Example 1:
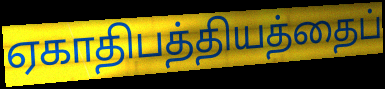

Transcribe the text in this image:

ஏகாதிபத்தியத்தைப்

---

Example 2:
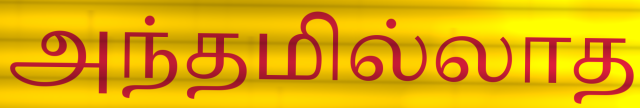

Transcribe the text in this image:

அந்தமில்லாத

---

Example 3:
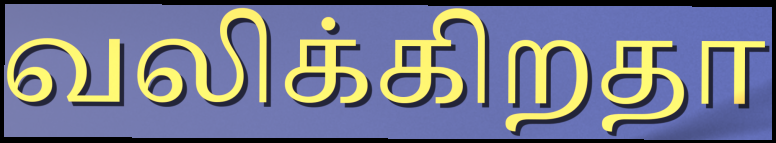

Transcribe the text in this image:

வலிக்கிறதா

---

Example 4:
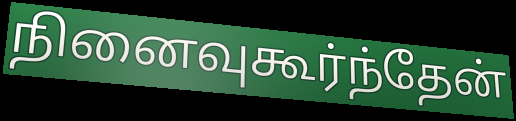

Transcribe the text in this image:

நினைவுகூர்ந்தேன்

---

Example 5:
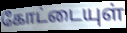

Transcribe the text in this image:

கோட்டையுள்